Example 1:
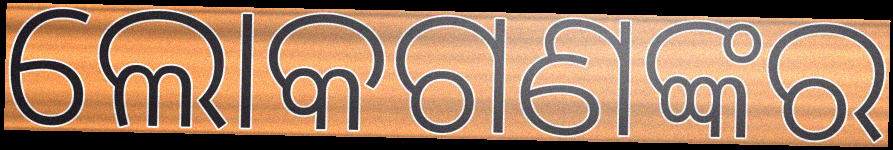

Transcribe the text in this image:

ଲୋକଗଣଙ୍କର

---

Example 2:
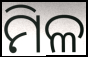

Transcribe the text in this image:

ମିଳ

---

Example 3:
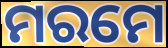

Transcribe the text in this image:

ମରମେ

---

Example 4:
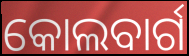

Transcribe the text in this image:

କୋଲବାର୍ଗ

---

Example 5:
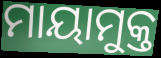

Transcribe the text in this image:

ମାୟାମୁକ୍ତ